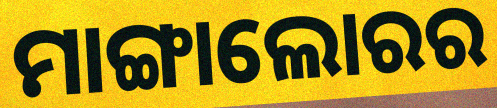
ମାଙ୍ଗାଲୋରର